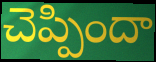
చెప్పిందా